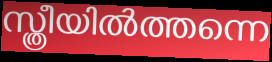
സ്ത്രീയിൽത്തന്നെ